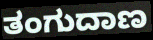
ತಂಗುದಾಣ